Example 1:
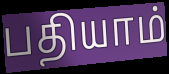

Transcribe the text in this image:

பதியாம்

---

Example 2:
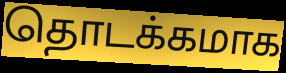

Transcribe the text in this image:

தொடக்கமாக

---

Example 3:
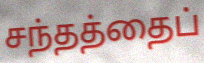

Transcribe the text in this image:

சந்தத்தைப்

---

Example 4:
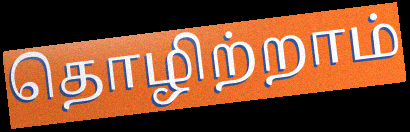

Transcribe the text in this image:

தொழிற்றாம்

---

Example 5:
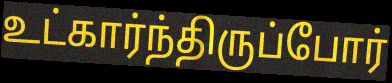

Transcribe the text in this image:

உட்கார்ந்திருப்போர்